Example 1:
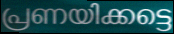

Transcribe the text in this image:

പ്രണയിക്കട്ടെ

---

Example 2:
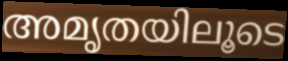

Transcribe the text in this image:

അമൃതയിലൂടെ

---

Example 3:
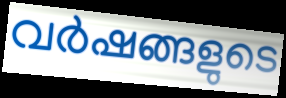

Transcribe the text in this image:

വർഷങ്ങളുടെ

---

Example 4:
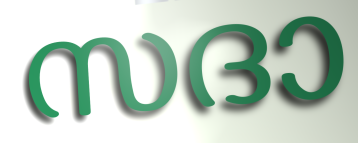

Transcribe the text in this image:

സദാ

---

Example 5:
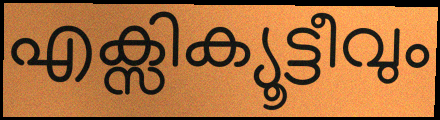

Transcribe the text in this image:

എക്സിക്യൂട്ടീവും